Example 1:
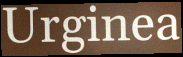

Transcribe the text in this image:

Urginea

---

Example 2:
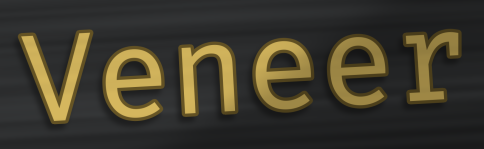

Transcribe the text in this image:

Veneer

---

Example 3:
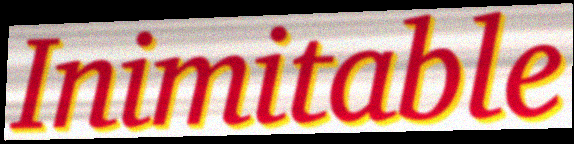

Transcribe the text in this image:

Inimitable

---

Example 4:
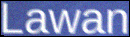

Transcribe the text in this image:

Lawan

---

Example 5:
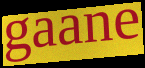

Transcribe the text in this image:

gaane